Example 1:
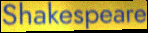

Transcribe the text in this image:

Shakespeare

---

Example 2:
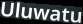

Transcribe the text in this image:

Uluwatu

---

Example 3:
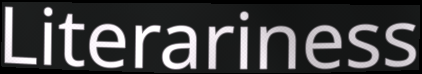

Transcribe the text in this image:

Literariness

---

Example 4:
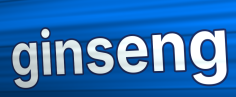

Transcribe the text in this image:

ginseng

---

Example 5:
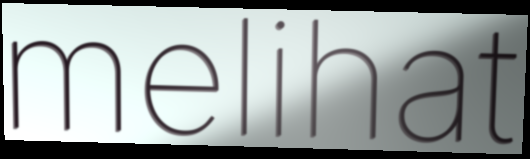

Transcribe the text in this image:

melihat